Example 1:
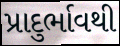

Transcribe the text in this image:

પ્રાદુર્ભાવથી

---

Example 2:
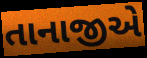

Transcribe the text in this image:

તાનાજીએ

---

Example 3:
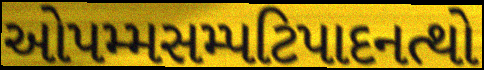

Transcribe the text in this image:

ઓપમ્મસમ્પટિપાદનત્થો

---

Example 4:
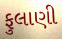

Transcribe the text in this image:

ફુલાણી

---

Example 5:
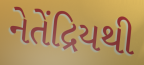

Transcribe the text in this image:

નેતેંદ્રિયથી